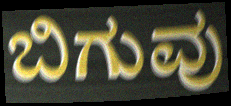
ಬಿಗುವು